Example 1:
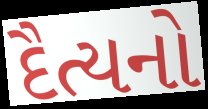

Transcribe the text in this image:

દૈત્યનો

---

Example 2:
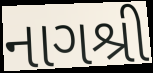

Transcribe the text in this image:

નાગશ્રી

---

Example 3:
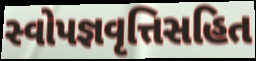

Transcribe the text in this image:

સ્વોપજ્ઞવૃત્તિસહિત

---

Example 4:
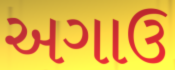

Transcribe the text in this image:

અગાઉ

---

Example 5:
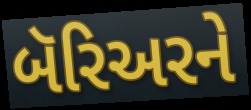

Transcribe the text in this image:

બૅરિઅરને